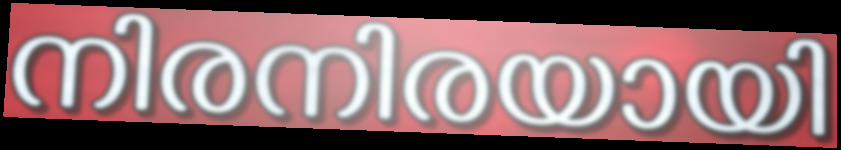
നിരനിരയായി